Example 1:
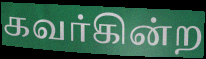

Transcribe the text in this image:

கவர்கின்ற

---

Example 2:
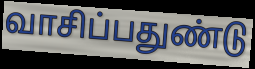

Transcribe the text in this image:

வாசிப்பதுண்டு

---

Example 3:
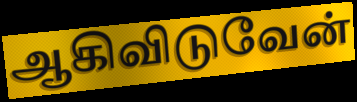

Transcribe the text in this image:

ஆகிவிடுவேன்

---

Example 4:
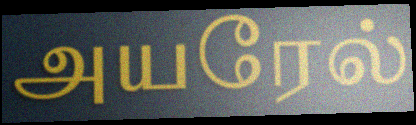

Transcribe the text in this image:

அயரேல்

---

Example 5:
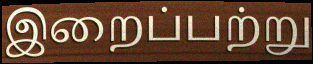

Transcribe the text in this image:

இறைப்பற்று